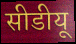
सीडीयू